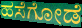
ಹಸೆಗೋಡೆ